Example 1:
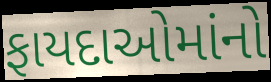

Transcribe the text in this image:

ફાયદાઓમાંનો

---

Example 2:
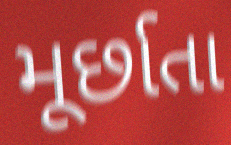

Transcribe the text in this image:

મૂર્છાતા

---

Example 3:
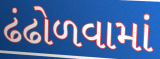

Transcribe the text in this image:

ઢંઢોળવામાં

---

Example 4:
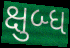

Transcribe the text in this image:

ક્ષુબ્ધ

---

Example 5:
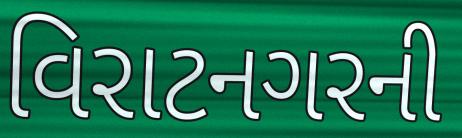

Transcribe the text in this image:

વિરાટનગરની